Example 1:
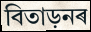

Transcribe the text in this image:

বিতাড়নৰ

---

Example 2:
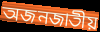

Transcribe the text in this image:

অজনজাতীয়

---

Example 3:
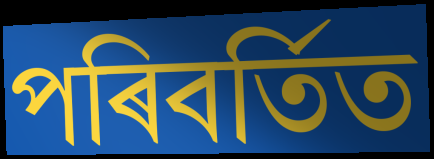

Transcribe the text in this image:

পৰিবৰ্তিত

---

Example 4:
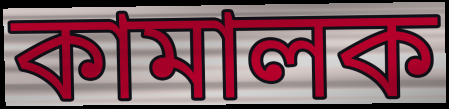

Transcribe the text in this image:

কামালক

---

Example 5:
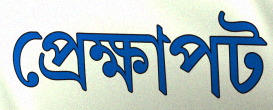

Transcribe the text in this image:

প্ৰেক্ষাপট